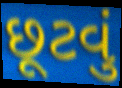
છૂટવું